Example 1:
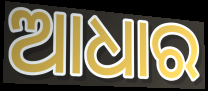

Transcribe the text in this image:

ଆଧାର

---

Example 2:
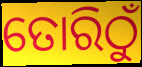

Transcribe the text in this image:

ତୋରିଠୁଁ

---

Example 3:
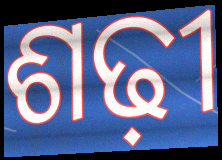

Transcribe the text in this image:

ଶଢ଼ୀ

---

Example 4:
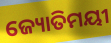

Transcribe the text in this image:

ଜ୍ୟୋତିମୟୀ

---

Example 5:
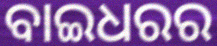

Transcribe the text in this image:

ବାଇଧରର